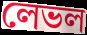
লেভল